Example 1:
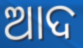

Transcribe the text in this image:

ଆଦ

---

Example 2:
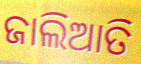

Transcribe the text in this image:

ଜାଲିଆତି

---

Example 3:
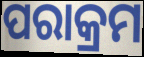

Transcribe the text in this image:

ପରାକ୍ରମ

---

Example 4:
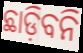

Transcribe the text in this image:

ଛାଡ଼ିବନି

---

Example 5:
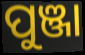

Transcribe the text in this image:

ପୁଞ୍ଜା